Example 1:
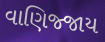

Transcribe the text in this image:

વાણિજ્જાય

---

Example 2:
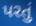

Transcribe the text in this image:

પરતું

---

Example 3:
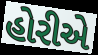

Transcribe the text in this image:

હોરીએ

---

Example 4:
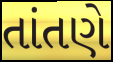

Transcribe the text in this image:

તાંતણે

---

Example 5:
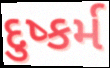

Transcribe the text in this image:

દુષ્કર્મ